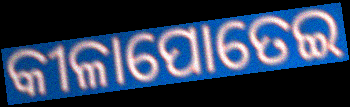
କୀଳାପୋତେଇ